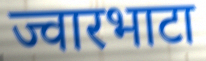
ज्वारभाटा